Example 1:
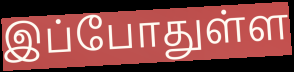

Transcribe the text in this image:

இப்போதுள்ள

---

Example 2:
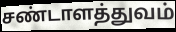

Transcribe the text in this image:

சண்டாளத்துவம்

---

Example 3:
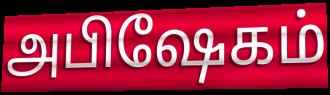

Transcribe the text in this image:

அபிஷேகம்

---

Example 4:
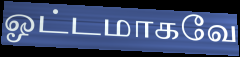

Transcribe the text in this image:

ஓட்டமாகவே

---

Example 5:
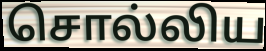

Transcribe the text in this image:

சொல்லிய